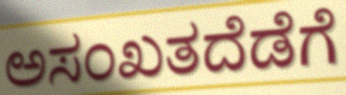
ಅಸಂಖತದೆಡೆಗೆ